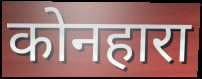
कोनहारा